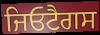
ਜਿਓਟੈਗਸ